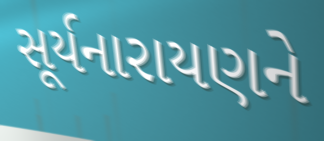
સૂર્યનારાયણને